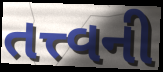
તત્ત્વની